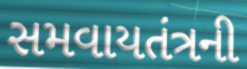
સમવાયતંત્રની